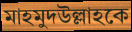
মাহমুদউল্লাহকে